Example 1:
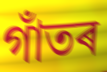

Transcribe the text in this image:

গাঁতৰ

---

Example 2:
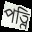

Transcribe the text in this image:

পত্নি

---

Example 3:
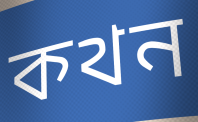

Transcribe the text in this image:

কথন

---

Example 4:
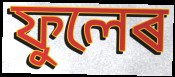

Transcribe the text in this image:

ফুলেৰ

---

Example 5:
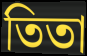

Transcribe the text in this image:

তিতা